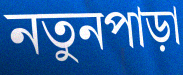
নতুনপাড়া